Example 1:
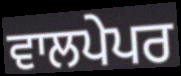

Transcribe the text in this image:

ਵਾਲਪੇਪਰ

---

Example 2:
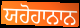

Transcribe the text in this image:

ਯਹੋਹਾਨਾਨ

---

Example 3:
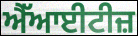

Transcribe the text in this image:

ਐੱਆਈਟੀਜ਼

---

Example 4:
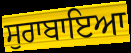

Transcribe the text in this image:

ਸੁਰਾਬਾਇਆ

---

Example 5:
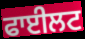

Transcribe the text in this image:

ਫਾਈਲਟ